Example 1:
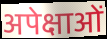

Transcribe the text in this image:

अपेक्षाओं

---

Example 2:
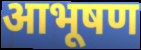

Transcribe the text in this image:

आभूषण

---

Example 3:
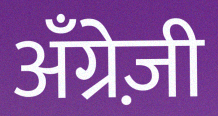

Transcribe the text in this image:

अँग्रेज़ी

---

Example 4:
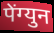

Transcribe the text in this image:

पेंग्युन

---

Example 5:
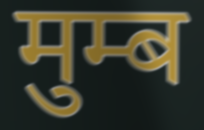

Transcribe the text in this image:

मुम्ब